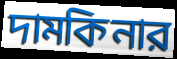
দামকিনার